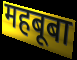
महबूबा